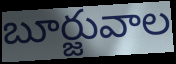
బూర్జువాల